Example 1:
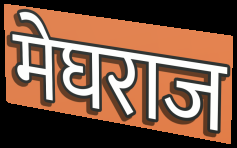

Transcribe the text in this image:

मेघराज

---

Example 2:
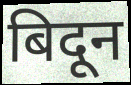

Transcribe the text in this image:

बिदून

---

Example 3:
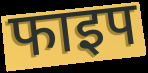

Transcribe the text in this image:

फाइप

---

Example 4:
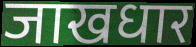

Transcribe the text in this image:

जाखधार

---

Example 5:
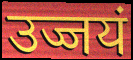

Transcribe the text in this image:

उज्जयं